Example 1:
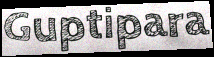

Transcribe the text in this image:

Guptipara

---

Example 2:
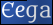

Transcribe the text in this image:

Eega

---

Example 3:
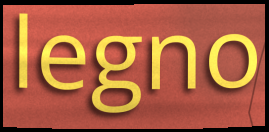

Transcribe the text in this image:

legno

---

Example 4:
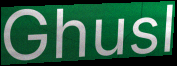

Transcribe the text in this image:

Ghusl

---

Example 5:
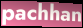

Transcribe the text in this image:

pachhan